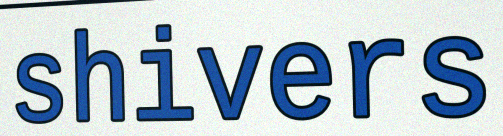
shivers